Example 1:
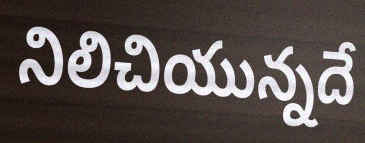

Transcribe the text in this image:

నిలిచియున్నదే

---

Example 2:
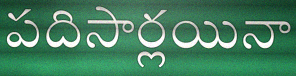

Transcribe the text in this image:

పదిసార్లయినా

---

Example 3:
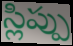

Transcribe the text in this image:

స్లిప్పు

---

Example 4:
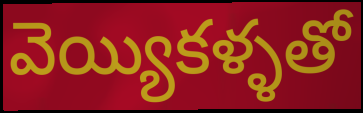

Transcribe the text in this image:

వెయ్యికళ్ళతో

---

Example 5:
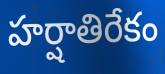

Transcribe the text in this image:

హర్షాతిరేకం